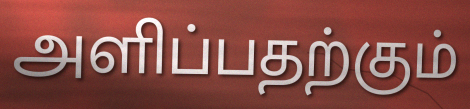
அளிப்பதற்கும்